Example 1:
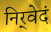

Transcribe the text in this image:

निर्वेदं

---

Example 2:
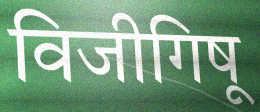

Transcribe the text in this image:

विजीगिषू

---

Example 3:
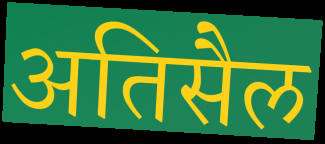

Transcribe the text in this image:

अतिसैल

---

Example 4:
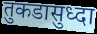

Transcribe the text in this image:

तुकडासुध्दा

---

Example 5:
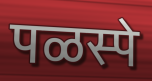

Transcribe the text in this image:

पळस्पे